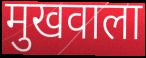
मुखवाला